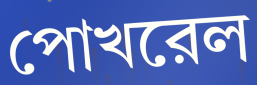
পোখরেল